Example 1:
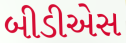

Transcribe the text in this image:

બીડીએસ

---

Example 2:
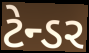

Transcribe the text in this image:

ટેન્ડર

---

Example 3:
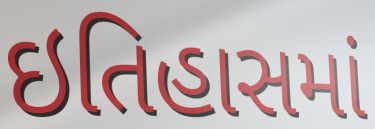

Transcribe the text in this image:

ઇતિહાસમાં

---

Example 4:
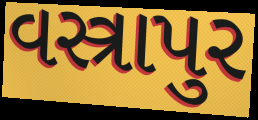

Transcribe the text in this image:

વસ્ત્રાપુર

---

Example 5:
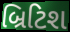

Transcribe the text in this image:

બ્રિટિશ